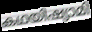
കഥയിഷ്യാമി